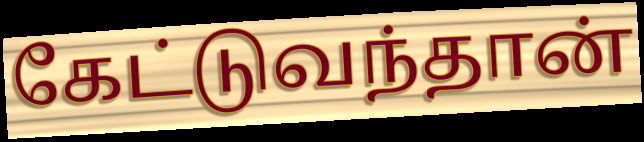
கேட்டுவந்தான்